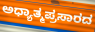
ಅಧ್ಯಾತ್ಮಪ್ರಸಾರದ